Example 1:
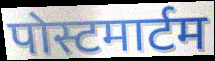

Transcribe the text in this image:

पोस्‍टमार्टम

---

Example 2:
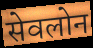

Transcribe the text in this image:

सेवलोन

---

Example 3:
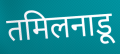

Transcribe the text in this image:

तमिलनाडू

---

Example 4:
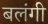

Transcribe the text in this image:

बलंगी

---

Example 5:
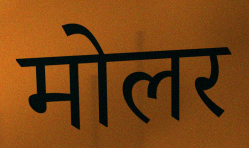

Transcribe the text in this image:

मोलर